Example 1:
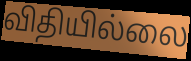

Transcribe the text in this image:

விதியில்லை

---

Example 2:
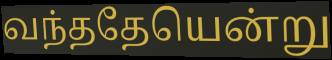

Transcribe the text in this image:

வந்ததேயென்று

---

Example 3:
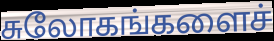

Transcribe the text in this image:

சுலோகங்களைச்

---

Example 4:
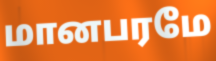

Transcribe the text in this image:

மானபரமே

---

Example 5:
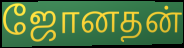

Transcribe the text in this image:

ஜோனதன்